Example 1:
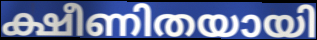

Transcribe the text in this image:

ക്ഷീണിതയായി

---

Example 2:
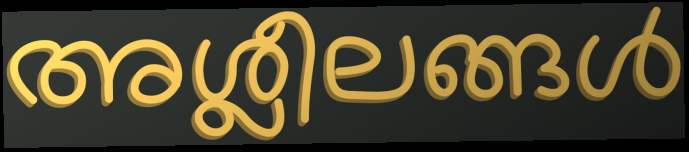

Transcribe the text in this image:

അശ്ലീലങ്ങൾ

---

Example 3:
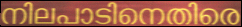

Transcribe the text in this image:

നിലപാടിനെതിരെ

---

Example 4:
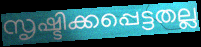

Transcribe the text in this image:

സൃഷ്ടിക്കപ്പെട്ടതല്ല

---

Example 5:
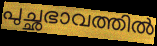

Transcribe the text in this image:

പുച്ഛഭാവത്തിൽ